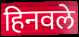
हिनवले